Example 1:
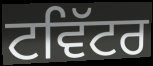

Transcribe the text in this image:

ਟਵਿੱਟਰ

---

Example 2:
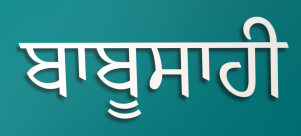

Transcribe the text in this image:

ਬਾਬੂਸਾਹੀ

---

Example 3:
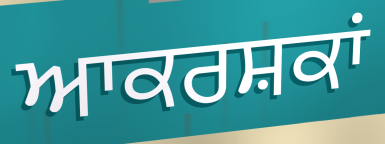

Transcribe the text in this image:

ਆਕਰਸ਼ਕਾਂ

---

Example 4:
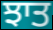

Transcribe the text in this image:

ਝਾਤ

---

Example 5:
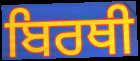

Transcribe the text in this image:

ਬਿਰਥੀ